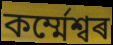
কৰ্ম্মেশ্বৰ